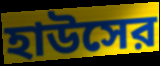
হাউসের